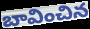
బావించిన